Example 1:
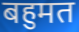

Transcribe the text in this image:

बहुमत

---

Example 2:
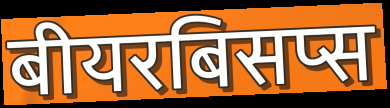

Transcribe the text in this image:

बीयरबिसप्स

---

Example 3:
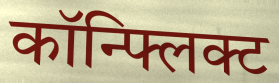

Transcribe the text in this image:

कॉन्फ्लिक्ट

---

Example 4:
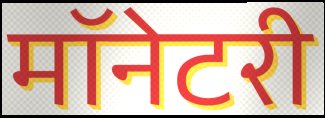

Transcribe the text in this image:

मॉनेटरी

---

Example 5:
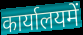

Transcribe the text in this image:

कार्यालयमें